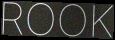
ROOK